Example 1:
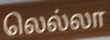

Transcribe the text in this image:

லெல்லா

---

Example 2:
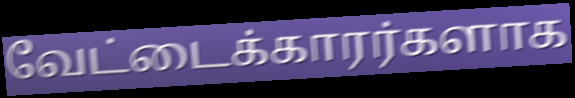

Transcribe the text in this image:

வேட்டைக்காரர்களாக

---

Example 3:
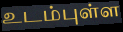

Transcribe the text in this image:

உடம்புள்ள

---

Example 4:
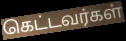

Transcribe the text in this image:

கெட்டவர்கள்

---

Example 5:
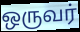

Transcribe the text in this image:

ஒருவர்